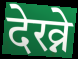
देख्ने